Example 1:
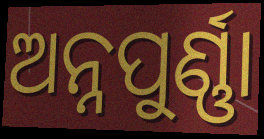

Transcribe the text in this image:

ଅନ୍ନପୁର୍ଣ୍ଣା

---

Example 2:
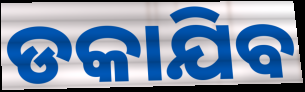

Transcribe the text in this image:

ଡକାଯିବ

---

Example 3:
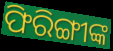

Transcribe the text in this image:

ଫିରିଙ୍ଗୀଙ୍କ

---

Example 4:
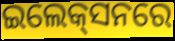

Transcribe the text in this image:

ଇଲେକ୍‍ସନରେ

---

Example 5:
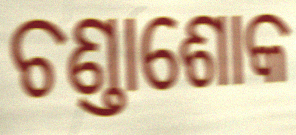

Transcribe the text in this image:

ଚଣ୍ଡାଶୋକ